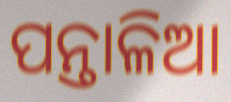
ପନ୍ତାଳିଆ